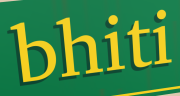
bhiti